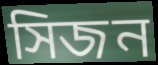
সিজন